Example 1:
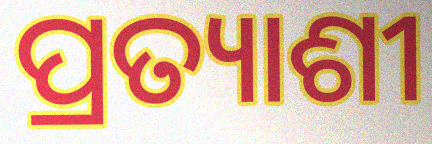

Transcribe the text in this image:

ପ୍ରତ୍ୟାଶୀ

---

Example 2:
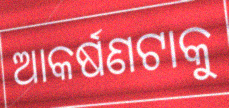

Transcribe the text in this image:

ଆକର୍ଷଣଟାକୁ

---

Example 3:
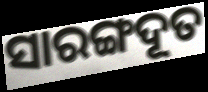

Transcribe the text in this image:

ସାରଙ୍ଗଦୂତ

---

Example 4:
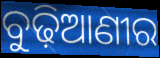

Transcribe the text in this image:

ବୁଢ଼ିଆଣୀର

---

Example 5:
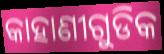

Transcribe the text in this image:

କାହାଣୀଗୁଡିକ